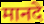
मानदे